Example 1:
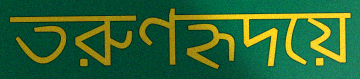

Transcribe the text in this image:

তরুণহৃদয়ে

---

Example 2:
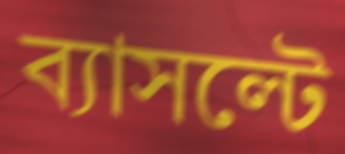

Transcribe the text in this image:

ব্যাসল্টে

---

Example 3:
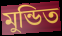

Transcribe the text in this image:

মুন্ডিত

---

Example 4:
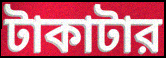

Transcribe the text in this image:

টাকাটার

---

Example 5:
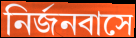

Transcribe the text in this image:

নির্জনবাসে